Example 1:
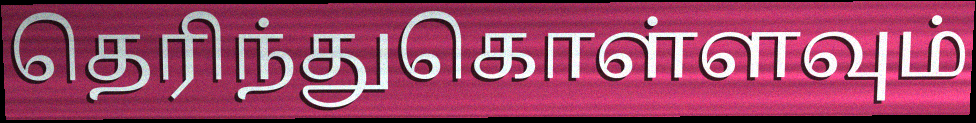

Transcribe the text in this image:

தெரிந்துகொள்ளவும்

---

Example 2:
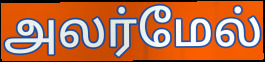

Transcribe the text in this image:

அலர்மேல்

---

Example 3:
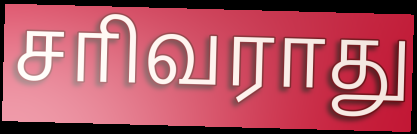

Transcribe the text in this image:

சரிவராது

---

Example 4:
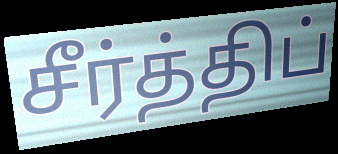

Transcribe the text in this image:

சீர்த்திப்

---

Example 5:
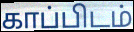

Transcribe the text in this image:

காப்பிடம்